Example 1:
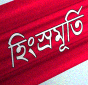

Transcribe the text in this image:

হিংস্রমূর্তি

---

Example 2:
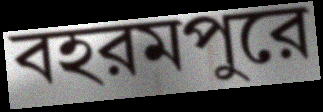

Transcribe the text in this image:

বহরমপুরে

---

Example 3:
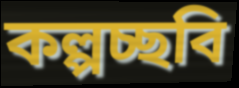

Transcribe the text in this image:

কল্পচ্ছবি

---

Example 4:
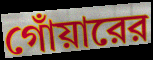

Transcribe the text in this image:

গোঁয়ারের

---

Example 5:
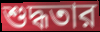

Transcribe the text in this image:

শুদ্ধতার